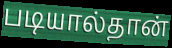
படியால்தான்